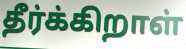
தீர்க்கிறாள்